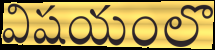
విషయంలొ